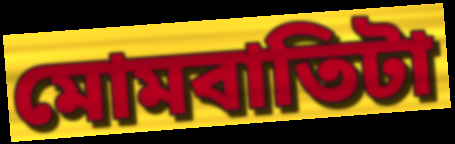
মোমবাতিটা